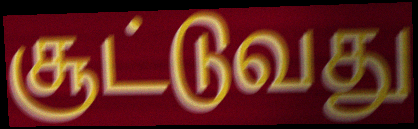
சூட்டுவது